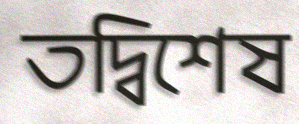
তদ্বিশেষ